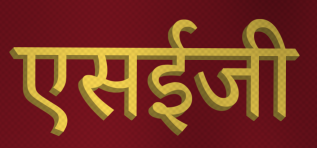
एसईजी